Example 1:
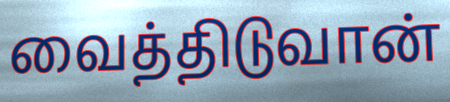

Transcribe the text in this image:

வைத்திடுவான்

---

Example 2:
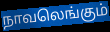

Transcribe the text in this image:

நாவலெங்கும்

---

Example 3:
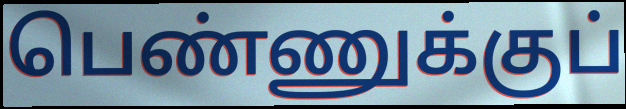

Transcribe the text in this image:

பெண்ணுக்குப்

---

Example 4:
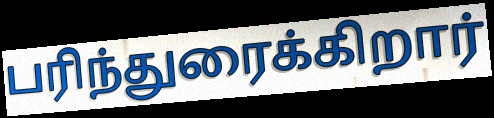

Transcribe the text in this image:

பரிந்துரைக்கிறார்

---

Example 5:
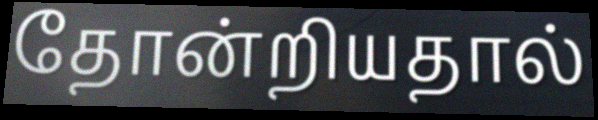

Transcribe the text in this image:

தோன்றியதால்